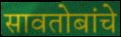
सावतोबांचे